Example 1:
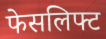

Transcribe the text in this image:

फेसलिफ्ट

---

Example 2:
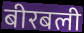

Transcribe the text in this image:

बीरबली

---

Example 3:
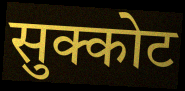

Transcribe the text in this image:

सुक्कोट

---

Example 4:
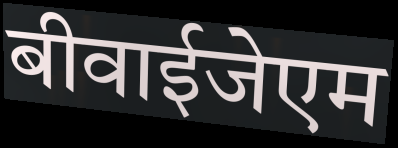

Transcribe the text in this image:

बीवाईजेएम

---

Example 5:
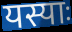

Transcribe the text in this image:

यस्याः